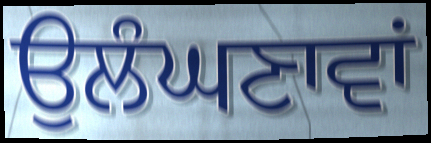
ਉਲੰਘਣਾਵਾਂ